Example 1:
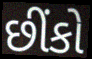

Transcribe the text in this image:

છીંકો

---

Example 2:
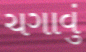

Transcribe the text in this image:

ચગાવું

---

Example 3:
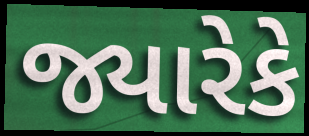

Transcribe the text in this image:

જ્યારેકે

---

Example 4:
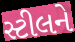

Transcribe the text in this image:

સ્ટીલને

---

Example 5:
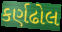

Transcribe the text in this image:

કર્ણઢોલ